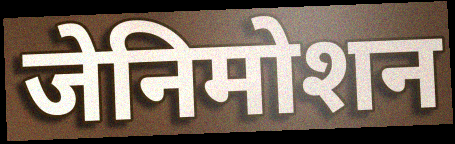
जेनिमोशन